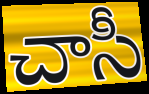
చాసీ